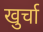
खुर्चा